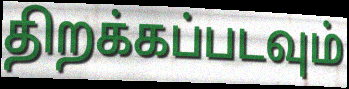
திறக்கப்படவும்